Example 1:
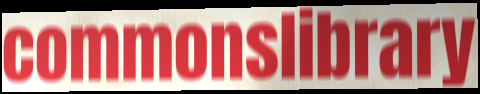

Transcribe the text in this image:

commonslibrary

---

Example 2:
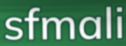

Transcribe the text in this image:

sfmali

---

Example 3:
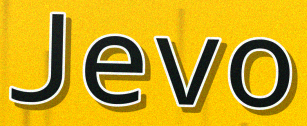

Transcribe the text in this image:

Jevo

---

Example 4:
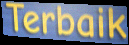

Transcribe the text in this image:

Terbaik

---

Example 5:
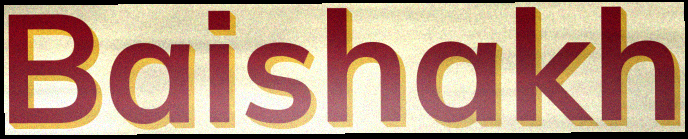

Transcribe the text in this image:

Baishakh